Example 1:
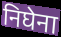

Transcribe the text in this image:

निघेना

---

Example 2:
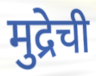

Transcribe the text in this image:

मुद्रेची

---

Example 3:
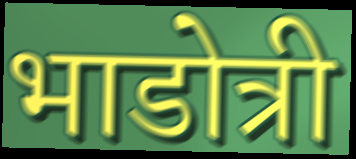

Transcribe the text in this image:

भाडोत्री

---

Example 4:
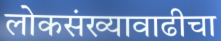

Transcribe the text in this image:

लोकसंख्यावाढीचा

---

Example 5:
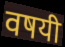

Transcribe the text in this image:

वषयी